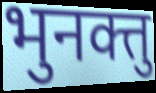
भुनक्तु